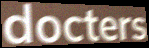
docters